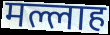
मल्लाह